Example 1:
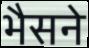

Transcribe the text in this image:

भैसने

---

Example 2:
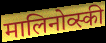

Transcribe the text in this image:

मालिनोव्स्की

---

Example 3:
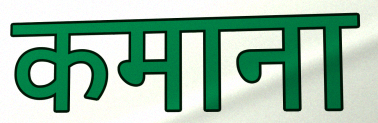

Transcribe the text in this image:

कमाना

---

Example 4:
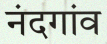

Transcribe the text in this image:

नंदगांव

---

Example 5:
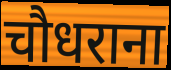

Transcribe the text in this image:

चौधराना